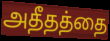
அதீதத்தை